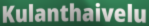
Kulanthaivelu